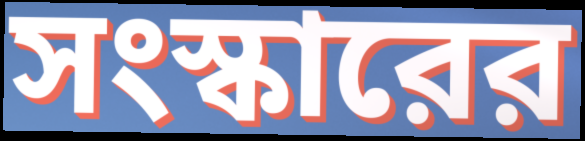
সংস্কারের